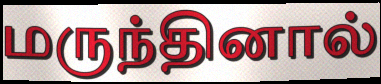
மருந்தினால்